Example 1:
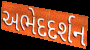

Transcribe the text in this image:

અભેદદર્શન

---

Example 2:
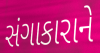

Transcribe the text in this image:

સંગાકારાને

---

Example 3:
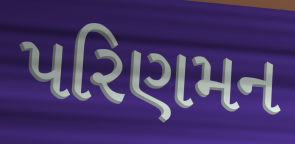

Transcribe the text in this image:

પરિણમન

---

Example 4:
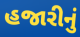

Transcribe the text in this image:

હજારીનું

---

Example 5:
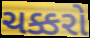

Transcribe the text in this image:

ચક્કરો